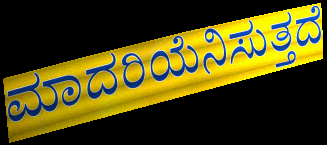
ಮಾದರಿಯೆನಿಸುತ್ತದೆ